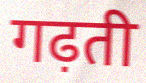
गढ़ती